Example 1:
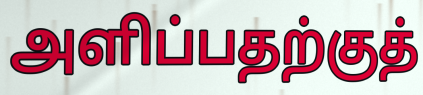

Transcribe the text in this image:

அளிப்பதற்குத்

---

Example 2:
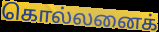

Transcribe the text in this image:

கொல்லனைக்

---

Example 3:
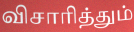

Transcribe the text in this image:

விசாரித்தும்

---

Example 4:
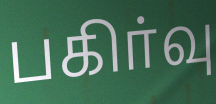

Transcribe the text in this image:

பகிர்வு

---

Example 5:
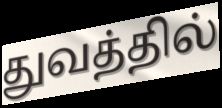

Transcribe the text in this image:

துவத்தில்